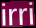
irri